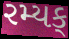
રમ્યક્